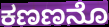
ಕಣಣನೊ